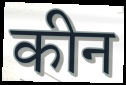
कीन